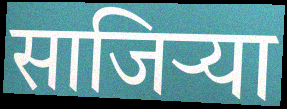
साजिर्‍या